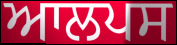
ਆਲਪਸ